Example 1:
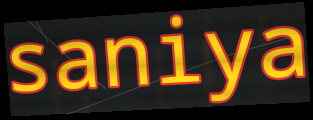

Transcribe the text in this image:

saniya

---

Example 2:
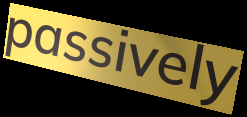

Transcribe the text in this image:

passively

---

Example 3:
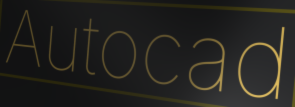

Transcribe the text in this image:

Autocad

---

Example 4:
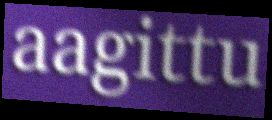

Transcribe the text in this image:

aagittu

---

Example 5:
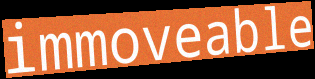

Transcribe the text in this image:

immoveable